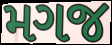
મગજ